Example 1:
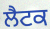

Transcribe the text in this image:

ਲੈਟਕ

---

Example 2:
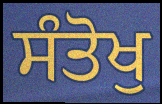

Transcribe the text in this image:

ਸੰਤੋਖੁ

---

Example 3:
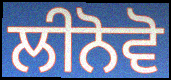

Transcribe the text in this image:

ਲੀਨੋਵੋ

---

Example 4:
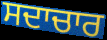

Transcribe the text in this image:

ਸਦਾਚਾਰ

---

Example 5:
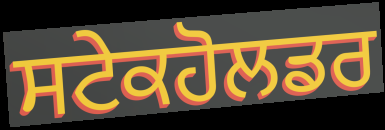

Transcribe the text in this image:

ਸਟੇਕਹੋਲਡਰ